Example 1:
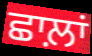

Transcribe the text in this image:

ਛਾਲ਼ਾਂ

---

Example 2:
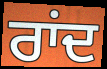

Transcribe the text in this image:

ਰਾਂਦ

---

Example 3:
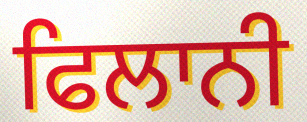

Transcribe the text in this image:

ਫਿਲਾਨੀ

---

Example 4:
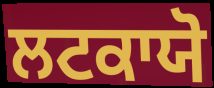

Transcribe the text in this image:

ਲਟਕਾਯੋ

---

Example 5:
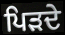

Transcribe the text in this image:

ਪਿੜਦੇ